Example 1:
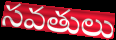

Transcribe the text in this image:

సవతులు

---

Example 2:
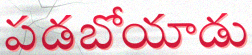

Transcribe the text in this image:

పడబోయాడు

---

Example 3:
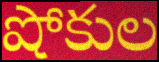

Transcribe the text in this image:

షోకుల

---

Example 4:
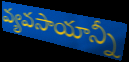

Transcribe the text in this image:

వ్యవసాయాన్నీ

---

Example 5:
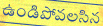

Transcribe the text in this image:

ఉండిపోవలసిన